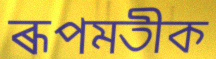
ৰূপমতীক